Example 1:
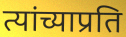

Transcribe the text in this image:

त्यांच्याप्रति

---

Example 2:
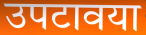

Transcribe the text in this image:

उपटावया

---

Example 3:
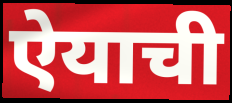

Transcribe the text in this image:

ऐयाची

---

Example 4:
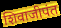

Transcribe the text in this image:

शिवाजीपंत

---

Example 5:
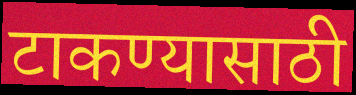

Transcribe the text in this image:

टाकण्यासाठी